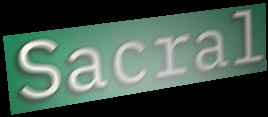
Sacral